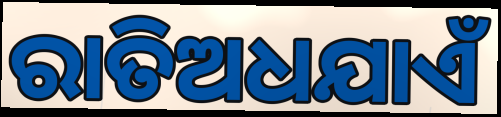
ରାତିଅଧଯାଏଁ